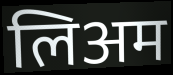
लिअम